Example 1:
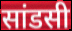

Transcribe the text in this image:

सांडसी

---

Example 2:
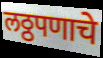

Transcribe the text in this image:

लठ्ठपणाचे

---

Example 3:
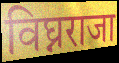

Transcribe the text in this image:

विघ्नराजा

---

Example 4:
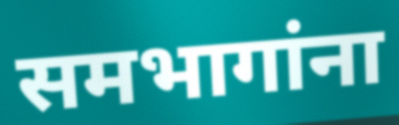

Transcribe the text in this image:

समभागांना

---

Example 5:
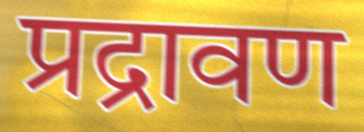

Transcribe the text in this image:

प्रद्रावण